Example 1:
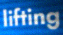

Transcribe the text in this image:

lifting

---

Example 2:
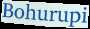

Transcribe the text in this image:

Bohurupi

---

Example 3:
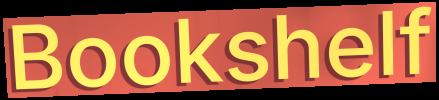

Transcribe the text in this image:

Bookshelf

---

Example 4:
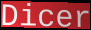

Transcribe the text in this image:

Dicer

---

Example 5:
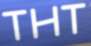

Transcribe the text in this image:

THT